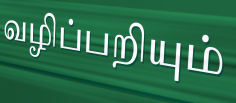
வழிப்பறியும்